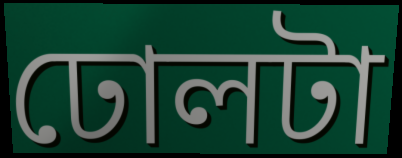
ঢোলটা